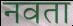
नवता